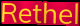
Rethel